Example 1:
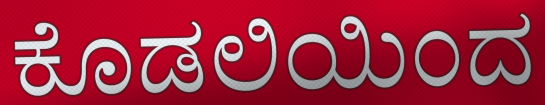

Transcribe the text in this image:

ಕೊಡಲಿಯಿಂದ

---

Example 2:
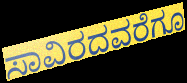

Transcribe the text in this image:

ಸಾವಿರದವರೆಗೂ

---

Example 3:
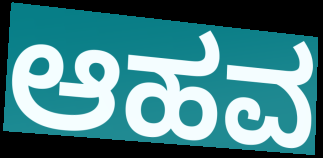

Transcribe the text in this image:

ಆಹವ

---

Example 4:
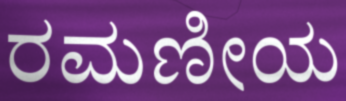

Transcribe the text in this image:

ರಮಣೀಯ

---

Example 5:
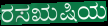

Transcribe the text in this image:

ರಸಋಷಿಯ